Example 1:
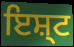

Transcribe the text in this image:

ਇਸ਼੍ਟ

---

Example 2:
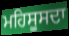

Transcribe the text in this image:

ਮਹਿਸੂਸਦਾ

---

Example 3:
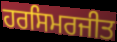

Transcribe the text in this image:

ਹਰਸਿਮਰਜੀਤ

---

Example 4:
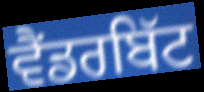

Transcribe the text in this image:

ਵੈਂਡਰਬਿੱਟ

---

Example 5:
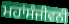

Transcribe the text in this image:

ਮਹਾਂਸੰਜੀਵਨੀ